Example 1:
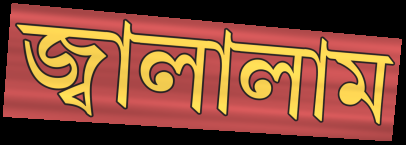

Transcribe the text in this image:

জ্বালালাম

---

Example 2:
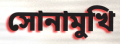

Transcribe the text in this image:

সোনামুখি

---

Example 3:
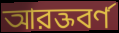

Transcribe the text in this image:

আরক্তবর্ণ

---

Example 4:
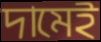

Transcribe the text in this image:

দামেই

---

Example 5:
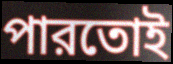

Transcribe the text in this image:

পারতোই